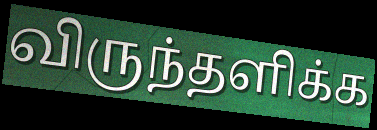
விருந்தளிக்க